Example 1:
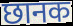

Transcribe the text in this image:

छानक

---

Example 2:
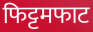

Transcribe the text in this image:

फिट्टमफाट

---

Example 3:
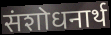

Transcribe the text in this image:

संशोधनार्थ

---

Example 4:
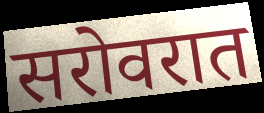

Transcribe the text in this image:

सरोवरात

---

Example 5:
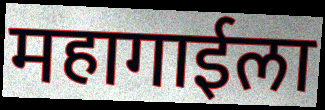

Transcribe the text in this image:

महागाईला